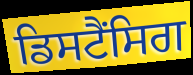
ਡਿਸਟੈਂਸਿਗ